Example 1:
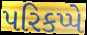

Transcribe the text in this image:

પરિકપ્પે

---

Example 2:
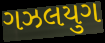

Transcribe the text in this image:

ગઝલયુગ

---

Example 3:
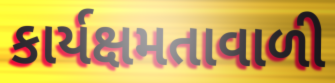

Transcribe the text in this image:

કાર્યક્ષમતાવાળી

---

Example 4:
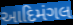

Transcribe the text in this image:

આદિમંગલ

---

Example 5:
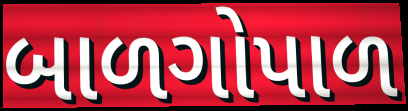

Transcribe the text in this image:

બાળગોપાળ